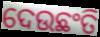
ଦେଉଛଂତି